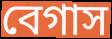
বেগাস